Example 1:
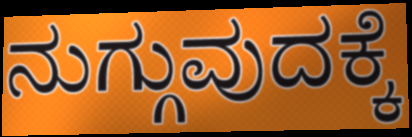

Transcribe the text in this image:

ನುಗ್ಗುವುದಕ್ಕೆ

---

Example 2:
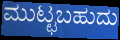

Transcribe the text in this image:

ಮುಟ್ಟಬಹುದು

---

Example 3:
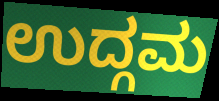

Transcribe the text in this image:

ಉದ್ಗಮ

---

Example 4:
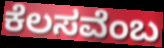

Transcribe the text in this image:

ಕೆಲಸವೆಂಬ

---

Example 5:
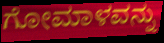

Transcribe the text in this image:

ಗೋಮಾಳವನ್ನು